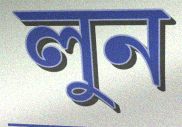
লুন